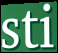
sti